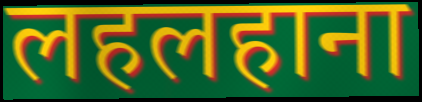
लहलहाना